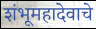
शंभूमहादेवाचे